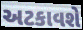
અટકાવશે